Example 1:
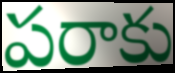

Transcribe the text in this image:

పరాకు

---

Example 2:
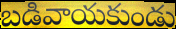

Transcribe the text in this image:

బడివాయకుండు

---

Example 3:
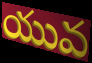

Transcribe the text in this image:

యువ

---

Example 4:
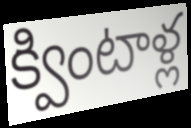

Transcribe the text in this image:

క్వింటాళ్ల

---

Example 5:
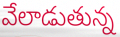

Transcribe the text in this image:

వేలాడుతున్న